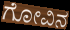
ಗೋವಿನ